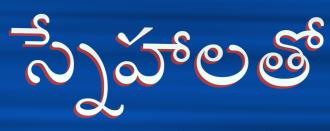
స్నేహాలతో